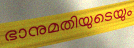
ഭാനുമതിയുടെയും